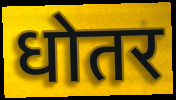
धोतर